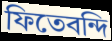
ফিতেবন্দি